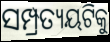
ସମ୍ପ୍ରତ୍ୟୟଟିକୁ